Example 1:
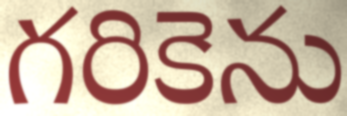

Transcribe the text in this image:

గరికెను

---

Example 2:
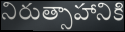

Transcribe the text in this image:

నిరుత్సాహానికి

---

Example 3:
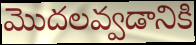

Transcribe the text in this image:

మొదలవ్వడానికి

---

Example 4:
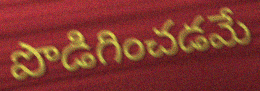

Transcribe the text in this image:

పొడిగించడమే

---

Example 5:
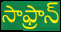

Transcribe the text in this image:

సాఫ్రాన్